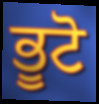
ਭੂਟੋ